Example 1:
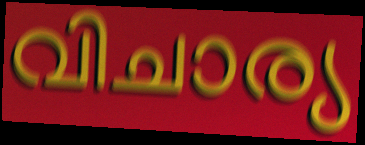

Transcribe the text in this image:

വിചാര്യ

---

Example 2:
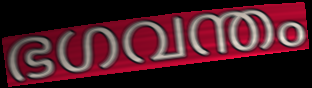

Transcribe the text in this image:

ഭഗവന്തം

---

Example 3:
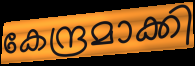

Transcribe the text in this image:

കേന്ദ്രമാക്കി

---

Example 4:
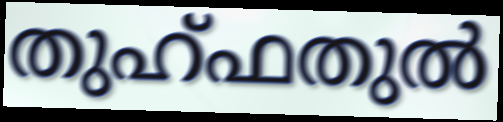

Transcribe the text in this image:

തുഹ്ഫതുൽ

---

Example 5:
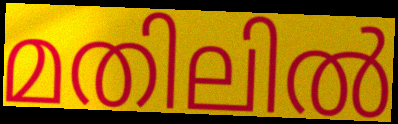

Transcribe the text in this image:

മതിലിൽ